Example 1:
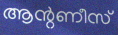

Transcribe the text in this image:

ആന്റണീസ്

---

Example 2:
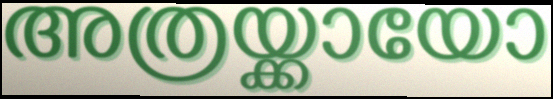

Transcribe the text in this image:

അത്രയ്ക്കായോ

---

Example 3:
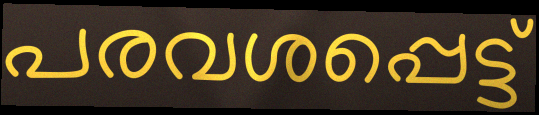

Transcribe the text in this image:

പരവശപ്പെട്ട്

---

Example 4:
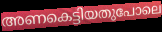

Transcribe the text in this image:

അണകെട്ടിയതുപോലെ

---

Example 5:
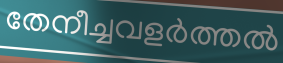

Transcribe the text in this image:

തേനീച്ചവളർത്തൽ